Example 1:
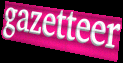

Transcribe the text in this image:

gazetteer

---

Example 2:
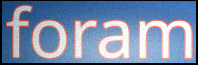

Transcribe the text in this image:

foram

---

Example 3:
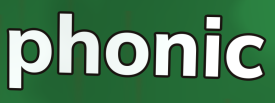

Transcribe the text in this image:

phonic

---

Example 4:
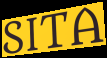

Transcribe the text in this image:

SITA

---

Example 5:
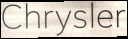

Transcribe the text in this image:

Chrysler